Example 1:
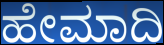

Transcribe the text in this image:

ಹೇಮಾದಿ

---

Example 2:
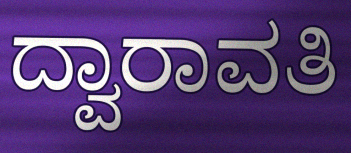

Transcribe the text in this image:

ದ್ವಾರಾವತಿ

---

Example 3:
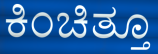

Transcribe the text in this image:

ಕಿಂಚಿತ್ತೂ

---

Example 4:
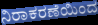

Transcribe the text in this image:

ನಿರಾಕರಣೆಯಿಂದ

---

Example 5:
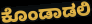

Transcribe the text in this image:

ಕೊಂಡಾಡಲಿ